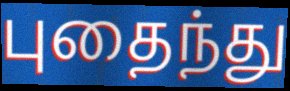
புதைந்து